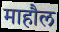
माहौल